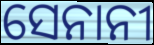
ସେନାନୀ